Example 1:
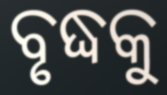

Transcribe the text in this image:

ବୃଦ୍ଧକୁ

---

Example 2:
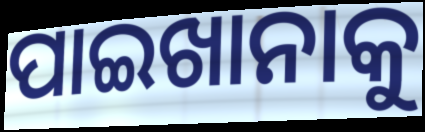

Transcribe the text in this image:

ପାଇଖାନାକୁ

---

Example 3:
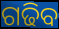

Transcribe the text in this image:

ଗଢିବ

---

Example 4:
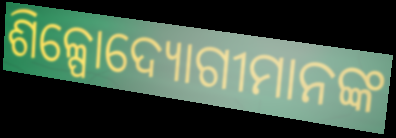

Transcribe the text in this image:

ଶିଳ୍ପୋଦ୍ୟୋଗୀମାନଙ୍କ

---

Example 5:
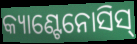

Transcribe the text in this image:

କ୍ୟାଣ୍ଟେନୋସିସ୍